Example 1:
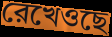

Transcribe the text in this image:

রেখেওছে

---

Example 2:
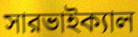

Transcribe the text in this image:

সারভাইক্যাল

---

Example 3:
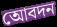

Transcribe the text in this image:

আেবদন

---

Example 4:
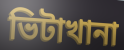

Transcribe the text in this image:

ভিটাখানা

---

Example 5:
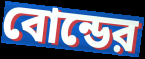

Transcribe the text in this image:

বোন্ডের